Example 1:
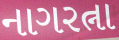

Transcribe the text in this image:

નાગરત્ના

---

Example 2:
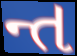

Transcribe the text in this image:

ન્ત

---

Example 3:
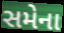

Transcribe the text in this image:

સમેના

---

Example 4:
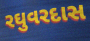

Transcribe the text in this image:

રઘુવરદાસ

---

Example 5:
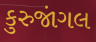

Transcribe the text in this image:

કુરુજાંગલ